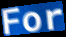
For